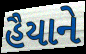
હૈયાને